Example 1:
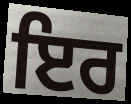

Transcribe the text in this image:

ਇਰ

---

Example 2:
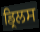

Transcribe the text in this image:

ਡ੍ਰਿਲਸ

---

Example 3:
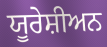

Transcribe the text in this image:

ਯੂਰੇਸ਼ੀਅਨ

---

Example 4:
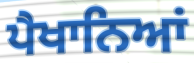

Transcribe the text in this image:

ਪੈਖਾਨਿਆਂ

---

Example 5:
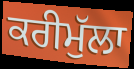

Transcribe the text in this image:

ਕਰੀਮੁੱਲਾ